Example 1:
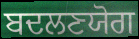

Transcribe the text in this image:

ਬਦਲਣਯੋਗ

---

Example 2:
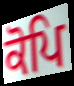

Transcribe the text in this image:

ਕੋਪਿ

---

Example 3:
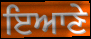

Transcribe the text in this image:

ਇਆਣੇ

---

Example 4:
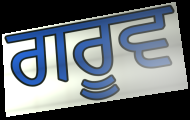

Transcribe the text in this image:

ਗਰੂਵ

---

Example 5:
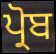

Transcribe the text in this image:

ਪ੍ਰੋਬ